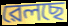
ৱেলছে